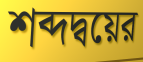
শব্দদ্বয়ের